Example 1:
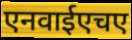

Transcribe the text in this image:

एनवाईएचए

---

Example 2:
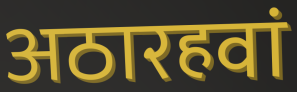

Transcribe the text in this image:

अठारहवां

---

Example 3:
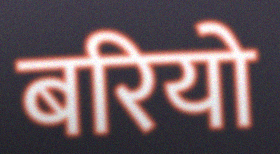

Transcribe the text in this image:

बरियो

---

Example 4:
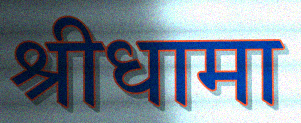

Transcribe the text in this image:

श्रीधामा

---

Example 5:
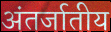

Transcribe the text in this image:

अंतर्जातीय